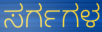
ಸರ್ಗಗಳ